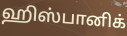
ஹிஸ்பானிக்